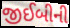
જીઈબીની